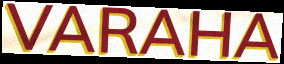
VARAHA